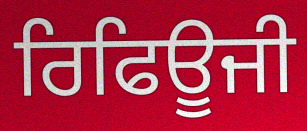
ਰਿਫਿਊਜੀ